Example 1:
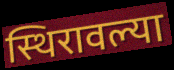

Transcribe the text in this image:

स्थिरावल्या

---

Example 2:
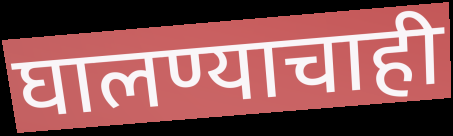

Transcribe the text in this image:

घालण्याचाही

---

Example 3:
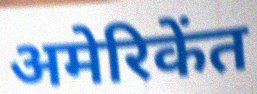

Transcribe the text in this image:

अमेरिकेंत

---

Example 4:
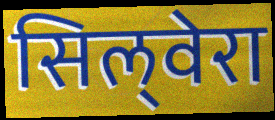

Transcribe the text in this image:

सिल्वेरा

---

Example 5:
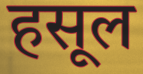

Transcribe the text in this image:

हसूल